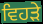
ਵਿਹੜੇ